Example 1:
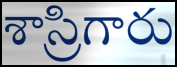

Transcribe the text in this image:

శాస్రిగారు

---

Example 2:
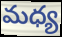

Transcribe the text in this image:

మధ్య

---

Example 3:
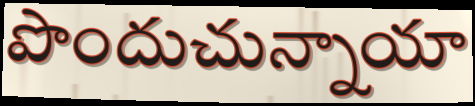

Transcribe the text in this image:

పొందుచున్నాయా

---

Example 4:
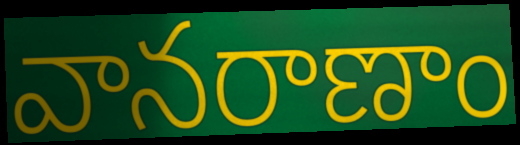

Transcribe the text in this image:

వానరాణాం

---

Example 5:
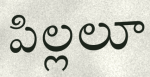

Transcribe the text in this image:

పిల్లలూ